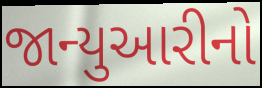
જાન્યુઆરીનો